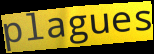
plagues